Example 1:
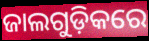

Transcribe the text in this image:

ଜାଲଗୁଡ଼ିକରେ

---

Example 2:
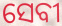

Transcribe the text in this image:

ସେବୀ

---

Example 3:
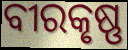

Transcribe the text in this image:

ବୀରକୃଷ୍ଣ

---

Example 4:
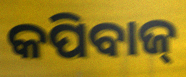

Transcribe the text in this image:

କପିବାଜ୍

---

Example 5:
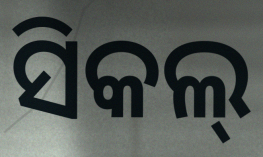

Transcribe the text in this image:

ସିକଲ୍